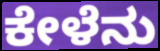
ಕೇಳೆನು